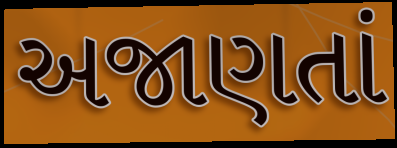
અજાણતાં